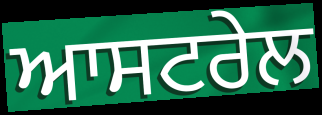
ਆਸਟਰੇਲ